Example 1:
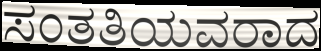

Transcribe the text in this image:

ಸಂತತಿಯವರಾದ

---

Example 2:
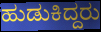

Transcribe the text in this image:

ಹುಡುಕಿದ್ದರು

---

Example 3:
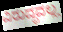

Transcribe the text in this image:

ವಿರುದ್ಧವಲ್ಲ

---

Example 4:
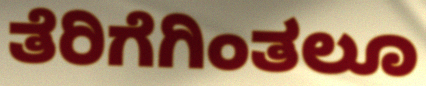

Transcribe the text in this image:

ತೆರಿಗೆಗಿಂತಲೂ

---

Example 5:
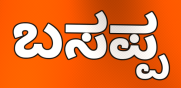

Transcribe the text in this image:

ಬಸಪ್ಪ